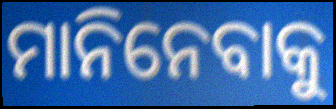
ମାନିନେବାକୁ